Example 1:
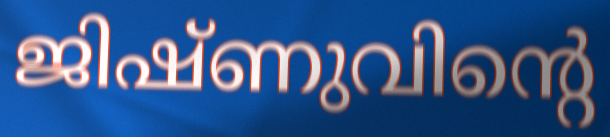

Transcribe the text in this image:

ജിഷ്ണുവിന്റെ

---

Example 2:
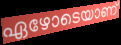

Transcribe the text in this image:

ഏഴോടെയാണ്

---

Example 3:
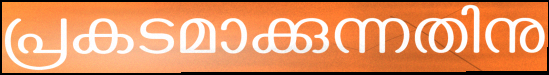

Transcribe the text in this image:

പ്രകടമാക്കുന്നതിനു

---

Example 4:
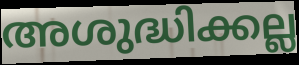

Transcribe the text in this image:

അശുദ്ധിക്കല്ല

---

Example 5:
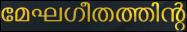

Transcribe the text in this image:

മേഘഗീതത്തിന്റ